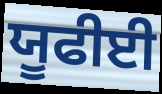
ਯੂਫੀਈ